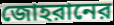
জোহরানের